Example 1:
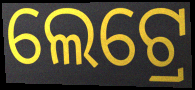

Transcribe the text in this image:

ଲେଟ୍ରେ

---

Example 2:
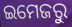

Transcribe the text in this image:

ଇମେଜରୁ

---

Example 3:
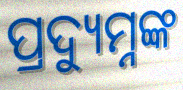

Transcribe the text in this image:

ପ୍ରଦ୍ୟୁମ୍ନଙ୍କ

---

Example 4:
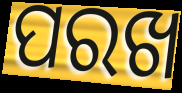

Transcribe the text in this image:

ପରଖ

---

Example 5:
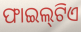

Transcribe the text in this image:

ଫାଇଲ୍‌ଟିଏ